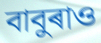
বাবুৰাও